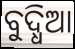
ବୁଦ୍ଧିଆ